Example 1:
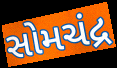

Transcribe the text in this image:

સોમચંદ્ર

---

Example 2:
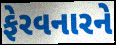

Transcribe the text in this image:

ફેરવનારને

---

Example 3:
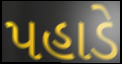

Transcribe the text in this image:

પહાડે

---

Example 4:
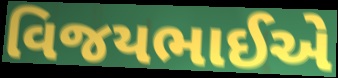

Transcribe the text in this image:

વિજયભાઈએ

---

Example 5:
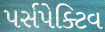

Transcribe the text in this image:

પર્સપેક્ટિવ